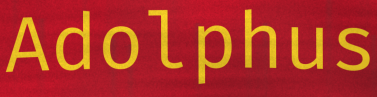
Adolphus